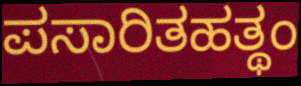
ಪಸಾರಿತಹತ್ಥಂ